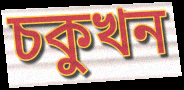
চকুখন